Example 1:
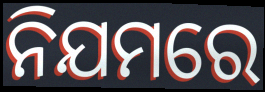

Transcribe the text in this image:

ନିଯମରେ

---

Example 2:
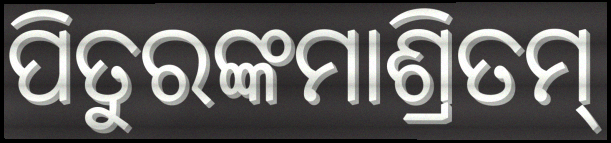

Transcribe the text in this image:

ପିତୁରଙ୍କମାଶ୍ରିତମ୍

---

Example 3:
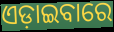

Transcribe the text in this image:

ଏଡ଼ାଇବାରେ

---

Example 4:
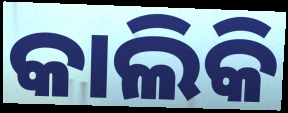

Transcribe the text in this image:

କାଲିକି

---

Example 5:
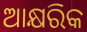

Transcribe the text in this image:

ଆକ୍ଷରିକ